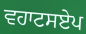
ਵਹਾਟਸਏਪ